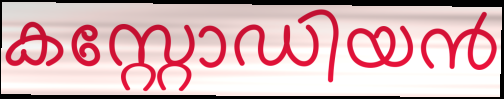
കസ്റ്റോഡിയൻ